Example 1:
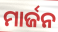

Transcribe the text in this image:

ମାର୍ଜନ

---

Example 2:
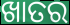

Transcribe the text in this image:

ଖାତର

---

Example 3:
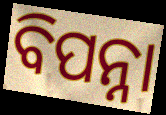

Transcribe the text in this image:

ବିପନ୍ନା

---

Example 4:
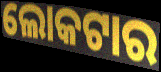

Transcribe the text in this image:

ଲୋକଟାର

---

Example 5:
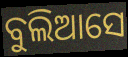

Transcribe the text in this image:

ବୁଲିଆସେ